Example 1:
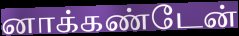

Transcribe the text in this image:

னாக்கண்டேன்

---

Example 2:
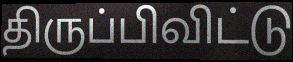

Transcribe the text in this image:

திருப்பிவிட்டு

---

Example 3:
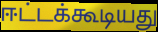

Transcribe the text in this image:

ஈட்டக்கூடியது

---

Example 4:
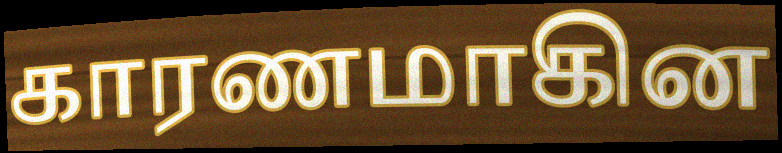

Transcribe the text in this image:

காரணமாகின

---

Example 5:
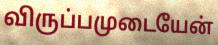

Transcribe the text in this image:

விருப்பமுடையேன்